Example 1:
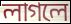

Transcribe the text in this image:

লাগলে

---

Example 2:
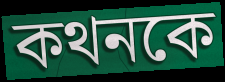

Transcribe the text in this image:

কথনকে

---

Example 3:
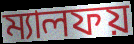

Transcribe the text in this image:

ম্যালফয়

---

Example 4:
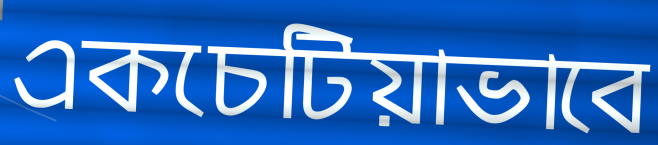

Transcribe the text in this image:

একচেটিয়াভাবে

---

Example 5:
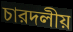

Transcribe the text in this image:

চারদলীয়